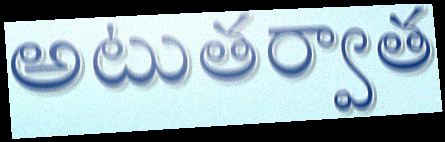
అటుతర్వాత